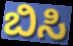
ಬಿಸಿ